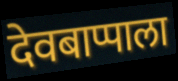
देवबाप्पाला